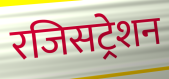
रजिसट्रेशन